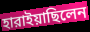
হারাইয়াছিলেন